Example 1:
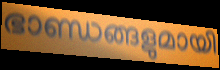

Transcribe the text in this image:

ഭാണ്ഡങ്ങളുമായി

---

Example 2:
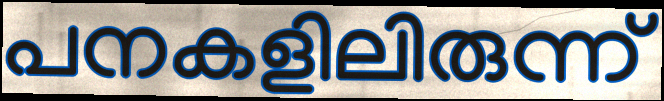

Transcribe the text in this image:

പനകളിലിരുന്ന്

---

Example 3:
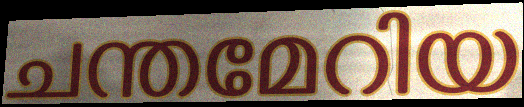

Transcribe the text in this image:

ചന്തമേറിയ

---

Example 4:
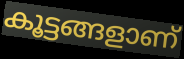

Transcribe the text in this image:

കൂട്ടങ്ങളാണ്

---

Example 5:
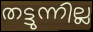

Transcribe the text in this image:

തട്ടുന്നില്ല